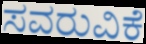
ಸವರುವಿಕೆ